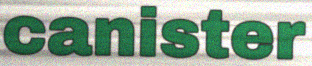
canister